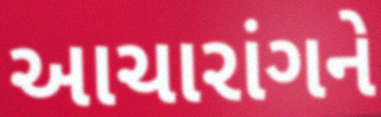
આચારાંગને